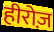
हीरोज़